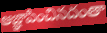
ఆజ్ఞాపించినదంతా